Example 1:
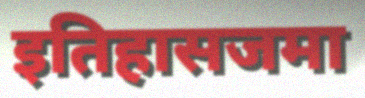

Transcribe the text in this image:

इतिहासजमा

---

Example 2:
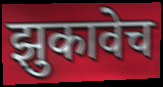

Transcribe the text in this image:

झुकावेच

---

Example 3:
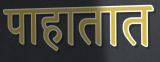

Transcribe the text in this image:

पाहातात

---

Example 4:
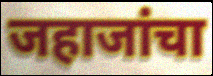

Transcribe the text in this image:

जहाजांचा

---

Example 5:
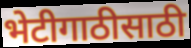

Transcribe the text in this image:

भेटीगाठीसाठी